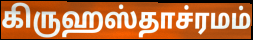
கிருஹஸ்தாச்ரமம்